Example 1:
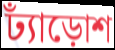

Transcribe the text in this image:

ঢ্যাঁড়োশ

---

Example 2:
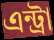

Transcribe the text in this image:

এন্ট্রা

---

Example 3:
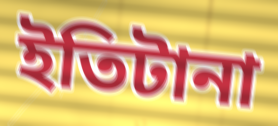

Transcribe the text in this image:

ইতিটানা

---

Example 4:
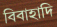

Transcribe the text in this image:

বিবাহাদি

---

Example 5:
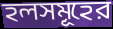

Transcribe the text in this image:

হলসমূহের